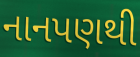
નાનપણથી